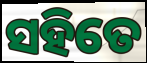
ସହିତେ